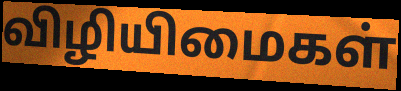
விழியிமைகள்